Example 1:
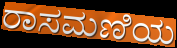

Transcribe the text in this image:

ರಾಸಮಣಿಯ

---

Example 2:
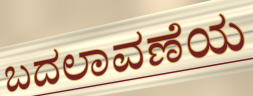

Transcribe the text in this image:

ಬದಲಾವಣೆಯ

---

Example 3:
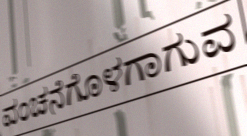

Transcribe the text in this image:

ವಂಚನೆಗೊಳಗಾಗುವ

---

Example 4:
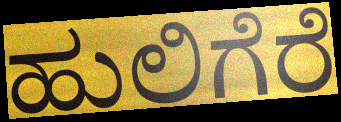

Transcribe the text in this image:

ಹುಲಿಗೆರೆ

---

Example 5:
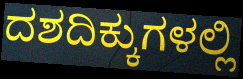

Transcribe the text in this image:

ದಶದಿಕ್ಕುಗಳಲ್ಲಿ